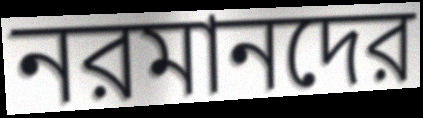
নরমানদের